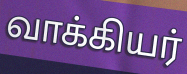
வாக்கியர்